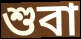
শুবা